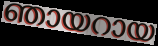
ഞായറായ